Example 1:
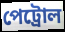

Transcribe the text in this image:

পেট্ৰোল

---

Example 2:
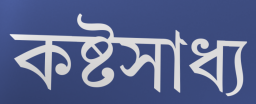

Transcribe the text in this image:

কষ্টসাধ্য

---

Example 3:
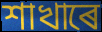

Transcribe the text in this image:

শাখাৰে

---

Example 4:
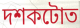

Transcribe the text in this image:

দশকটোত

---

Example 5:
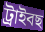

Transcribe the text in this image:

ট্ৰাইবছ